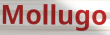
Mollugo